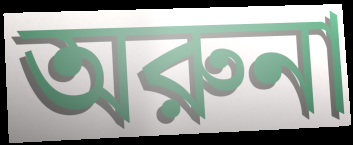
অরুনা